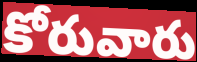
కోరువారు